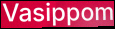
Vasippom